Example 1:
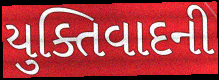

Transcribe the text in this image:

યુક્તિવાદની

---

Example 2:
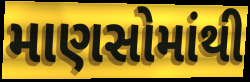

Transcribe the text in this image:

માણસોમાંથી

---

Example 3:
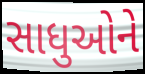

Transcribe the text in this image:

સાધુઓને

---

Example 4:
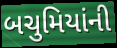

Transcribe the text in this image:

બચુમિયાંની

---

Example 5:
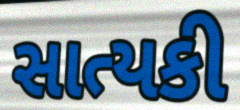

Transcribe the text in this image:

સાત્યકી